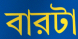
বারটা